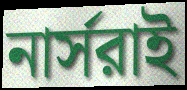
নার্সরাই